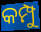
କମ୍ପୁ